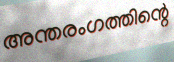
അന്തരംഗത്തിന്റെ